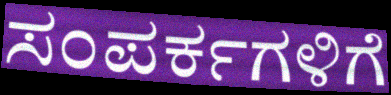
ಸಂಪರ್ಕಗಳಿಗೆ